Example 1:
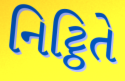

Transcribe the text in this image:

નિટ્ઠિતે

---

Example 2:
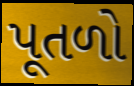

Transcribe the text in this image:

પૂતળો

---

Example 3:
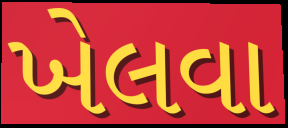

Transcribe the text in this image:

ખેલવા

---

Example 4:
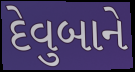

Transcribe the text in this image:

દેવુબાને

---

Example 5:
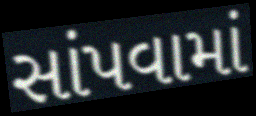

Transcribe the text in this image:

સાંપવામાં